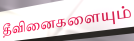
தீவினைகளையும்